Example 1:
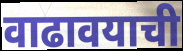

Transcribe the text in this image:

वाढावयाची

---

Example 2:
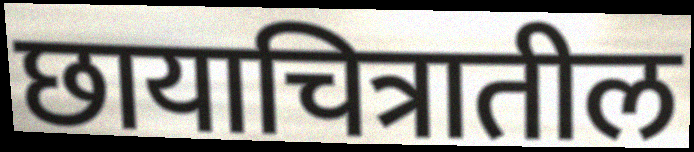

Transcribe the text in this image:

छायाचित्रातील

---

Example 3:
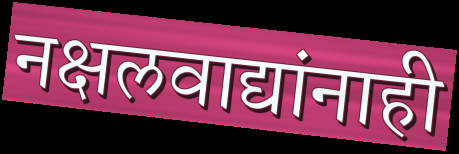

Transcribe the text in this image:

नक्षलवाद्यांनाही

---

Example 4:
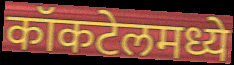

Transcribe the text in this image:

कॉकटेलमध्ये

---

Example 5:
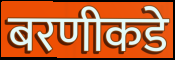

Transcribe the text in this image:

बरणीकडे